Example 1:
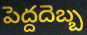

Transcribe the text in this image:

పెద్దదెబ్బ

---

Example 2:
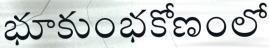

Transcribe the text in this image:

భూకుంభకోణంలో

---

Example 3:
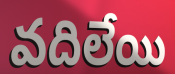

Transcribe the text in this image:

వదిలేయి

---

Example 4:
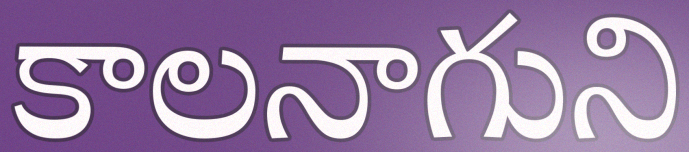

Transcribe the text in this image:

కాలనాగుని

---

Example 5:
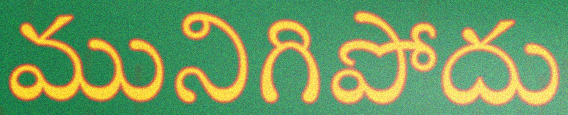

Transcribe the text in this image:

మునిగిపోదు